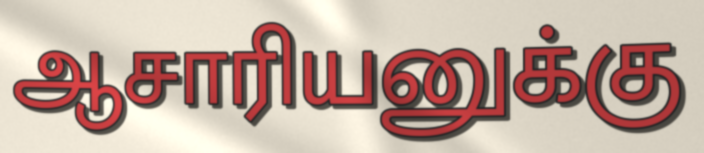
ஆசாரியனுக்கு